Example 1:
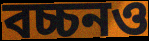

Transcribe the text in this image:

বচ্চনও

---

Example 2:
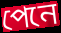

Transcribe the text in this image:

পেনে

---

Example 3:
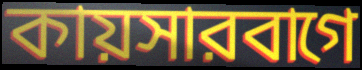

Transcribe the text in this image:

কায়সারবাগে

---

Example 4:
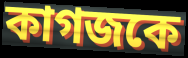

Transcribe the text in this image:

কাগজকে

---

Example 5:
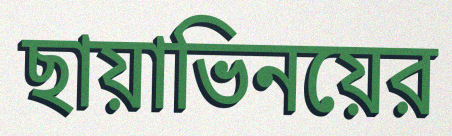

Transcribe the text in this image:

ছায়াভিনয়ের